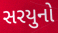
સરયુનો